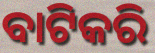
ବାଟିକରି